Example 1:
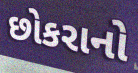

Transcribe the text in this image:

છોકરાનો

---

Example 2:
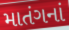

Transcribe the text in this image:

માતંગનાં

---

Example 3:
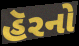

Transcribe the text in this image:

હૅરનો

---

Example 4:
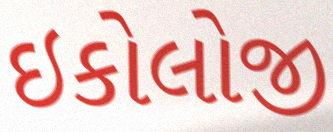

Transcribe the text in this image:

ઇકોલોજી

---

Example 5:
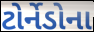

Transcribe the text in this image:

ટોર્નેડોના